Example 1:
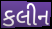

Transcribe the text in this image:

કલીન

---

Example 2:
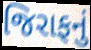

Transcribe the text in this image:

જિરાફનું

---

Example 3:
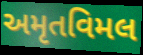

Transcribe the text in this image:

અમૃતવિમલ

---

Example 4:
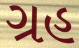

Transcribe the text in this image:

ગ્રહ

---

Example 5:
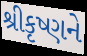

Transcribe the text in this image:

શ્રીકૃષ્ણને